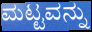
ಮಟ್ಟವನ್ನು